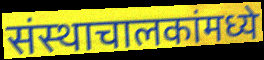
संस्थाचालकांमध्ये